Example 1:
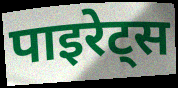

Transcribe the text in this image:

पाइरेट्स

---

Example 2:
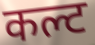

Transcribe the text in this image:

कल्ट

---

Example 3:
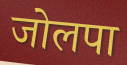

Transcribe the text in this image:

जोलपा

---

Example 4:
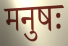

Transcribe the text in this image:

मनुषः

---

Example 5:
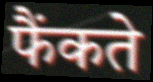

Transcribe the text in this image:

फैंकते